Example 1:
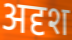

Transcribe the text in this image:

अदृश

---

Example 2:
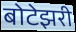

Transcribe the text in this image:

बोटेझरी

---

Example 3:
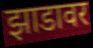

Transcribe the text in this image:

झाडावर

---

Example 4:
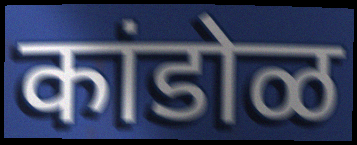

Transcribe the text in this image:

कांडोळ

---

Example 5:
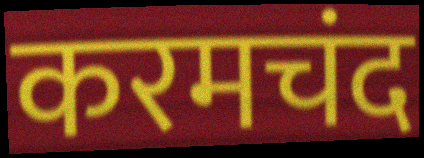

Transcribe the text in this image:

करमचंद